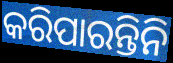
କରିପାରନ୍ତିନି